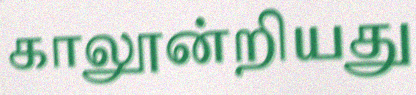
காலூன்றியது